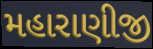
મહારાણીજી